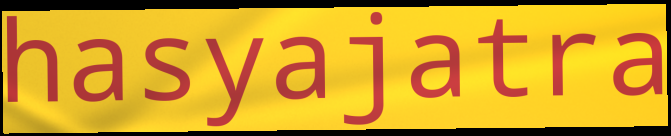
hasyajatra